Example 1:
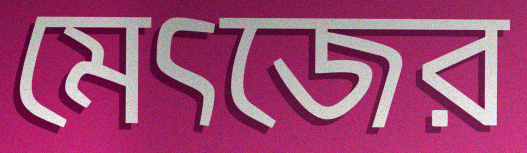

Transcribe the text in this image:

মেৎজের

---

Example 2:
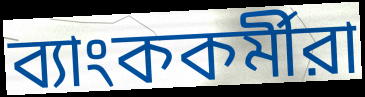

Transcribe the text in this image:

ব্যাংককর্মীরা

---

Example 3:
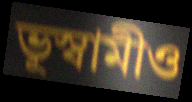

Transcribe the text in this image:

ভূস্বামীও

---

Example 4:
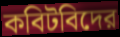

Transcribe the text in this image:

কবিটবিদের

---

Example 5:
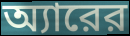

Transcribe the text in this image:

অ্যারের